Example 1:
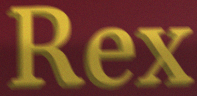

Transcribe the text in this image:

Rex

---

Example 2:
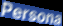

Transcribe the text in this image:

Persona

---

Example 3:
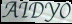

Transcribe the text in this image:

AIDYO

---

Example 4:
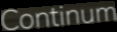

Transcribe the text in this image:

Continum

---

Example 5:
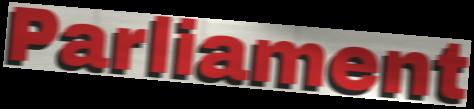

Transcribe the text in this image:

Parliament